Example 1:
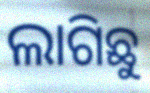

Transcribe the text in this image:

ଲାଗିଛୁ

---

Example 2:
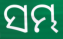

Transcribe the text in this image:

ସମ୍ଭ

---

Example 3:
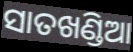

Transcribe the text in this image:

ସାତଖଣ୍ଡିଆ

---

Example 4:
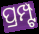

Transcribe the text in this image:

ପ୍ରମ୍ପ୍ଟ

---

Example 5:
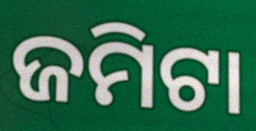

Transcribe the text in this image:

ଜମିଟା